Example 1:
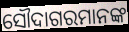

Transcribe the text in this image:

ସୌଦାଗରମାନଙ୍କ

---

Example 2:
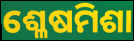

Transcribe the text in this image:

ଶ୍ଳେଷମିଶା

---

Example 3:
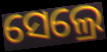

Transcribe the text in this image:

ସେଲ୍ରେ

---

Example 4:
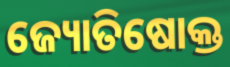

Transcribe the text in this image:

ଜ୍ୟୋତିଷୋକ୍ତ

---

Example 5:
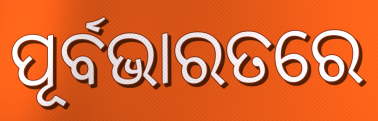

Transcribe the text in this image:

ପୂର୍ବଭାରତରେ